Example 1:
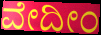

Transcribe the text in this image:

ವೇದೀಂ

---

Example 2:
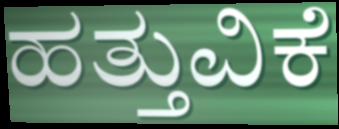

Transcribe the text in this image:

ಹತ್ತುವಿಕೆ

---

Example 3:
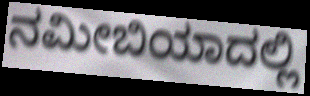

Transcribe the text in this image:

ನಮೀಬಿಯಾದಲ್ಲಿ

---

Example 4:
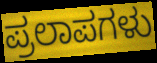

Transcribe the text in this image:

ಪ್ರಲಾಪಗಳು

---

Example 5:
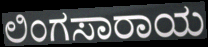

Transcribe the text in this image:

ಲಿಂಗಸಾರಾಯ